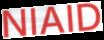
NIAID